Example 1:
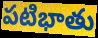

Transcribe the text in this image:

పటిభాతు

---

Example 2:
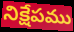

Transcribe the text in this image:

నిక్షేపము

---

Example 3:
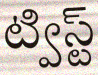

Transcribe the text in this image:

ట్విస్ట్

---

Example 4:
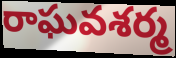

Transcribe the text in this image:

రాఘవశర్మ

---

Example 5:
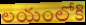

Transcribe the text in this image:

లయంలోకి